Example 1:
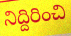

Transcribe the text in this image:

నిద్దిరించి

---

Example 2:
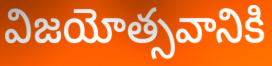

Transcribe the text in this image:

విజయోత్సవానికి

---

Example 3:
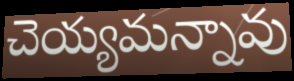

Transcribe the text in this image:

చెయ్యమన్నావు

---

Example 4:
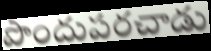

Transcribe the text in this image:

పొందుపరచాడు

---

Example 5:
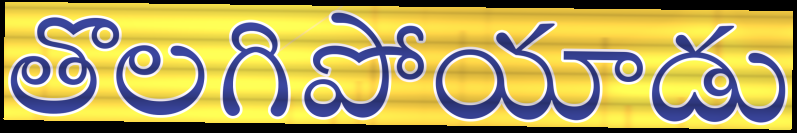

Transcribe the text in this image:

తొలగిపోయాడు